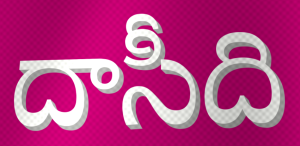
దాసీది